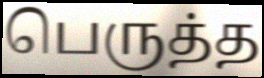
பெருத்த